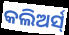
କଲିଅର୍ସ୍